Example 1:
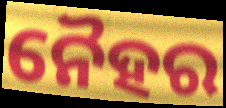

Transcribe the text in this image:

ନୈହର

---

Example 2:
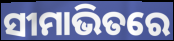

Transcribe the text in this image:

ସୀମାଭିତରେ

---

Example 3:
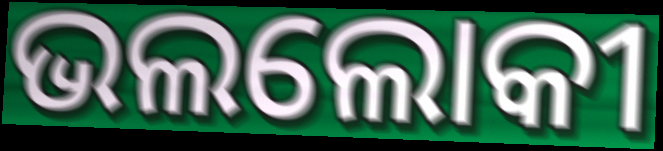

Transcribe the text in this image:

ଭଲଲୋକୀ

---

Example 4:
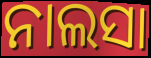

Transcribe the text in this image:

ନାଲସା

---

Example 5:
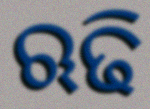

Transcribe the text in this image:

ଋଢି